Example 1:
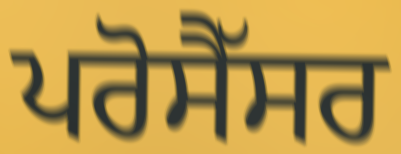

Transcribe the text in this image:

ਪਰੋਸੈੱਸਰ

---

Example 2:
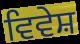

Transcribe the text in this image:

ਵਿਵੇਸ਼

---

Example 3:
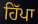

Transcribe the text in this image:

ਹਿੱਪਾ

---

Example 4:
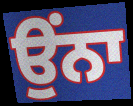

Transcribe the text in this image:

ਉੰਨਾ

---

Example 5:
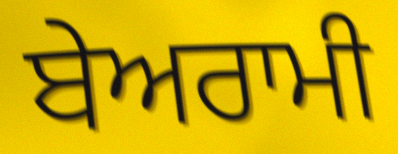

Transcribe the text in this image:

ਬੇਅਰਾਮੀ